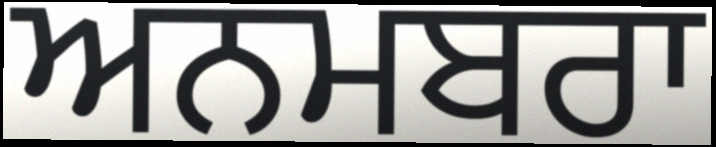
ਅਨਮਬਰਾ